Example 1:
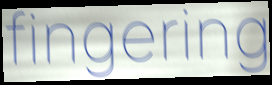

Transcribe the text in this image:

fingering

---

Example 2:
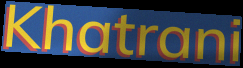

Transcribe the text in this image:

Khatrani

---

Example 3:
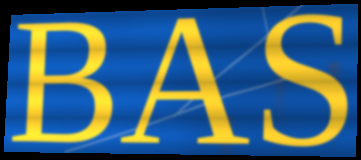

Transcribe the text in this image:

BAS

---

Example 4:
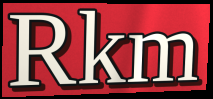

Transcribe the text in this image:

Rkm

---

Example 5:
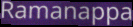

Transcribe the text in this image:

Ramanappa